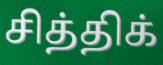
சித்திக்